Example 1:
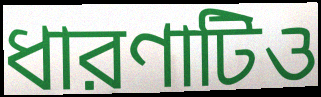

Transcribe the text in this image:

ধারণাটিও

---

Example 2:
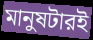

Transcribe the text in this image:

মানুষটারই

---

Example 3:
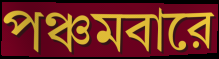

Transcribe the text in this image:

পঞ্চমবারে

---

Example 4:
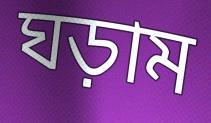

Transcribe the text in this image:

ঘড়াম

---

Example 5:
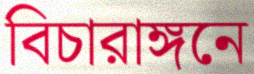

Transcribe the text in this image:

বিচারাঙ্গনে